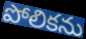
పోలికను